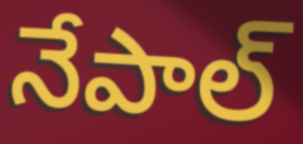
నేపాల్